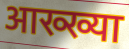
आख्ख्या